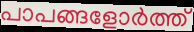
പാപങ്ങളോർത്ത്